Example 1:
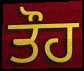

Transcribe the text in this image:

ਤੌਹ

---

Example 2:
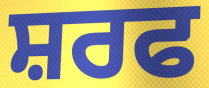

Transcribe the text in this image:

ਸ਼ਰਫ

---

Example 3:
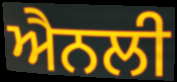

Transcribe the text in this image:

ਐਨਲੀ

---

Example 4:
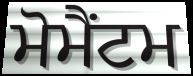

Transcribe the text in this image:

ਮੋਮੈਂਟਮ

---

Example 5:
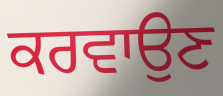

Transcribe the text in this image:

ਕਰਵਾਉਣ